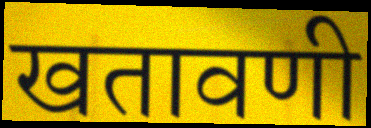
खतावणी